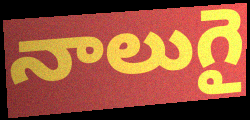
నాలుగై